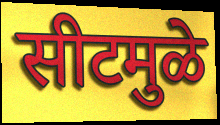
सीटमुळे